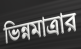
ভিন্নমাত্রার